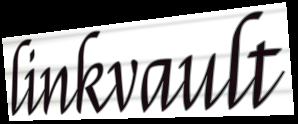
linkvault